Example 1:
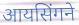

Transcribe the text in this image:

आयसिंगने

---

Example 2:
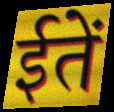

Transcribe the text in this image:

ईतें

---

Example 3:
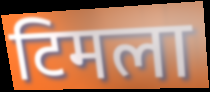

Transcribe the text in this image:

टिमला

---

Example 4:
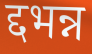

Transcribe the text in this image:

द्दभन्न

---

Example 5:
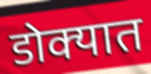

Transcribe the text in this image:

डोक्यात